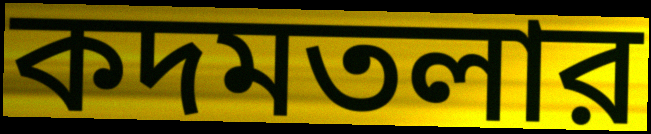
কদমতলার